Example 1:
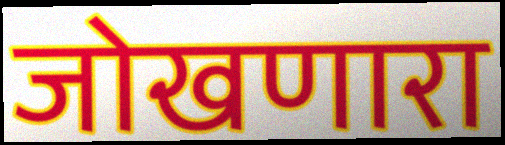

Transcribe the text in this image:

जोखणारा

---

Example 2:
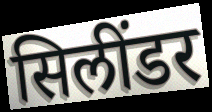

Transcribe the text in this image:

सिलींडर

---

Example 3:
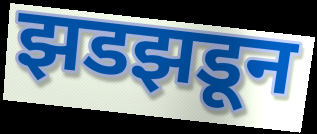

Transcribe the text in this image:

झडझडून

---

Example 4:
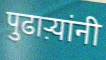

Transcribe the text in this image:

पुढाऱ्‍यांनी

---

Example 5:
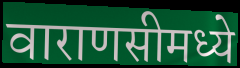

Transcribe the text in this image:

वाराणसीमध्ये